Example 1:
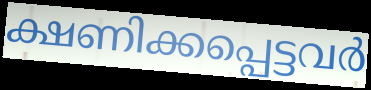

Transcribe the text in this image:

ക്ഷണിക്കപ്പെട്ടവർ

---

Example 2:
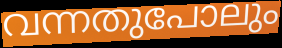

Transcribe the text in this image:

വന്നതുപോലും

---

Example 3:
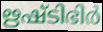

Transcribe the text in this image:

ഋഷ്ടിഭിർ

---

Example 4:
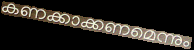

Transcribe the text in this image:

കണക്കാക്കണമെന്നും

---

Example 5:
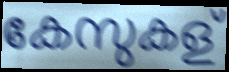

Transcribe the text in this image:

കേസുകള്